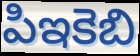
పిఇకెబి